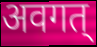
अवगत्